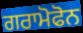
ਗਰਾਮੋਫੋਨ